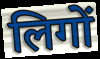
लिगों